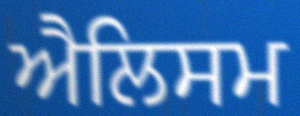
ਐਲਿਸਮ